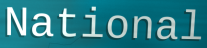
National